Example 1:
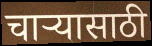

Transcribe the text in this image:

चार्‍यासाठी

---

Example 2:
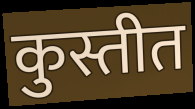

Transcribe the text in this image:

कुस्तीत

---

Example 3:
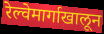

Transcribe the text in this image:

रेल्वेमार्गाखालून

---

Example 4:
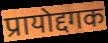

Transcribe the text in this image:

प्रायोद्दगक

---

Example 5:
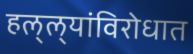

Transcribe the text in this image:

हल्ल्यांविरोधात